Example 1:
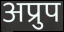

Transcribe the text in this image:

अप्रुप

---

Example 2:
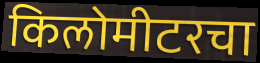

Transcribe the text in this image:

किलोमीटरचा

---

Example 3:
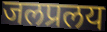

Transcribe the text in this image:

जलप्रलय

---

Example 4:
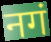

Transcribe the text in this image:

नगं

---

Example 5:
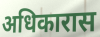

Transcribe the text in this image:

अधिकारास